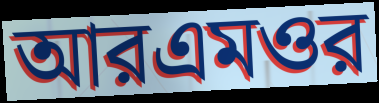
আরএমওর